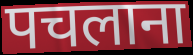
पचलाना